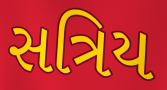
સત્રિય